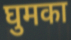
घुमका